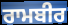
ਰਾਮਬੀਰ